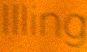
Illing